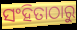
ସଂହିତାଠାରୁ